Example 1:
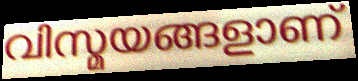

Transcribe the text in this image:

വിസ്മയങ്ങളാണ്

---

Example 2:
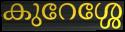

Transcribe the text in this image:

കുറേശ്ശേ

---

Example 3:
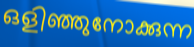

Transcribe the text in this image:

ഒളിഞ്ഞുനോക്കുന്ന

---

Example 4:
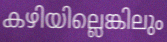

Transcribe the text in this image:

കഴിയില്ലെങ്കിലും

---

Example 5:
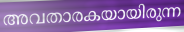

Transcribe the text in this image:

അവതാരകയായിരുന്ന